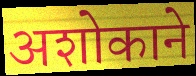
अशोकाने